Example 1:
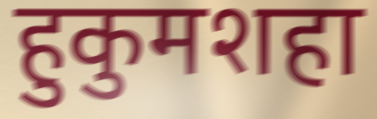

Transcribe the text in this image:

हुकुमशहा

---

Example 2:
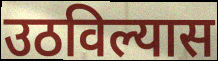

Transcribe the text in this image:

उठविल्यास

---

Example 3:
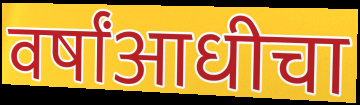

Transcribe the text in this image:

वर्षांआधीचा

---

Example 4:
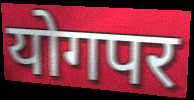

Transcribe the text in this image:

योगपर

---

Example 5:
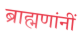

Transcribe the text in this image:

ब्राह्मणांनीं